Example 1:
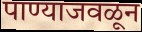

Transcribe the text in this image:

पाण्याजवळून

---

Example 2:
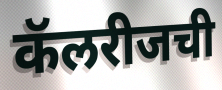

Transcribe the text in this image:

कॅलरीजची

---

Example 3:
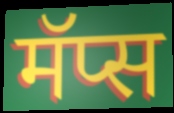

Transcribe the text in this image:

मॅप्स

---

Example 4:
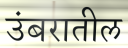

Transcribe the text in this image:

उंबरातील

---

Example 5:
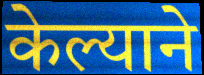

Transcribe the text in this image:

केल्‍याने